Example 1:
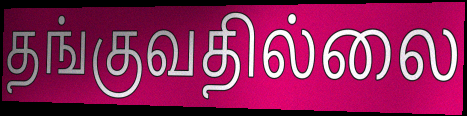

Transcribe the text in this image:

தங்குவதில்லை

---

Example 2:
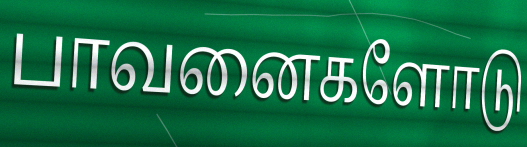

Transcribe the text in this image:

பாவனைகளோடு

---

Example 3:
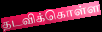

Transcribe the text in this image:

தடவிக்கொள்ள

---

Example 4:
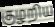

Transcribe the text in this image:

குழறிய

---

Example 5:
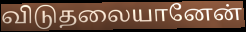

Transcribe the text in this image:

விடுதலையானேன்